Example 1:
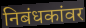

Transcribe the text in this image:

निबंधकांवर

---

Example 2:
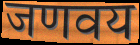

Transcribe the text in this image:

जणवय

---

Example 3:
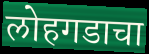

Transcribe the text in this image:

लोहगडाचा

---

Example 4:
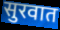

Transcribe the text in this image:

सुरवात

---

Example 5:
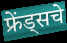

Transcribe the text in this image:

फ्रेंड्सचे